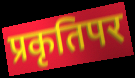
प्रकृतिपर